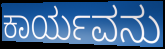
ಕಾರ್ಯವನು